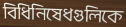
বিধিনিষেধগুলিকে